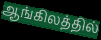
ஆங்கிலத்தில்